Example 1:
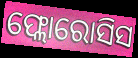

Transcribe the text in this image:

ଫ୍ଲୋରୋସିସ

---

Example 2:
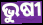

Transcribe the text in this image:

ଭୁଷୀ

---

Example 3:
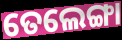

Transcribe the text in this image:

ତେଲେଙ୍ଗା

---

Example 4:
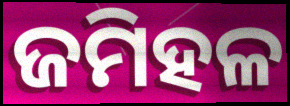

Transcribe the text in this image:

ଜମିହଳ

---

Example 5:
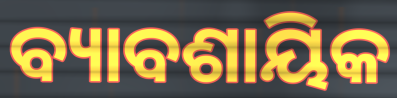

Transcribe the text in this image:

ବ୍ୟାବଶାୟିକ